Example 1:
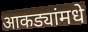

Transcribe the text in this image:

आकड्यांमधे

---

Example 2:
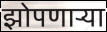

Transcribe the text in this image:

झोपणाऱ्या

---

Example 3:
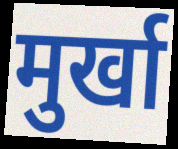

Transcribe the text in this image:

मुर्खा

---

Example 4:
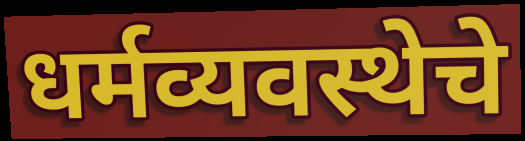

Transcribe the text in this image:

धर्मव्यवस्थेचे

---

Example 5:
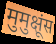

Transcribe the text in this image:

मुमुक्षूंस